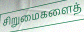
சிறுமைகளைத்